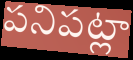
పనిపట్లా